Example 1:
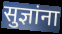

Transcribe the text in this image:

सुज्ञांना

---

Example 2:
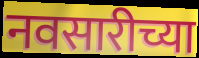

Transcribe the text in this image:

नवसारीच्या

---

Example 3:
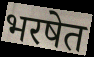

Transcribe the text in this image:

भरषेत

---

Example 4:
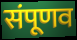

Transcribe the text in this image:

संपूणव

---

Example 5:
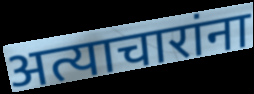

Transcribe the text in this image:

अत्याचारांना